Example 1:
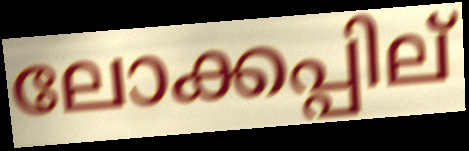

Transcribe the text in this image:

ലോക്കപ്പില്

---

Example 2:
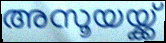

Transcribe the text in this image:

അസൂയയ്ക്ക്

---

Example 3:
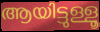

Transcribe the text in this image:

ആയിട്ടുള്ളൂ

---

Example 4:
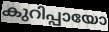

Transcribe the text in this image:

കുറിപ്പായോ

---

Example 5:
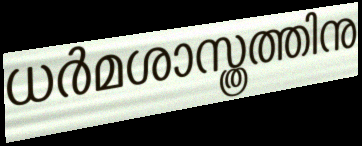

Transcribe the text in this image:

ധർമശാസ്ത്രത്തിനു